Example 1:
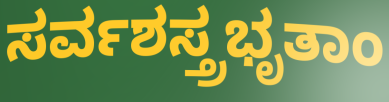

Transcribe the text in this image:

ಸರ್ವಶಸ್ತ್ರಭೃತಾಂ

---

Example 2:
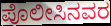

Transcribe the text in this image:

ಪೊಲೀಸಿನವರ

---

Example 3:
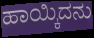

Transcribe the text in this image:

ಹಾಯ್ಕಿದನು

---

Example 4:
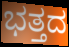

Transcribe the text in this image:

ಭತ್ತದ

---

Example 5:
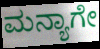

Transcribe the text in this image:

ಮನ್ಯಾಗೇ